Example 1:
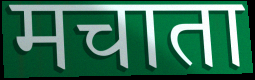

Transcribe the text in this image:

मचाता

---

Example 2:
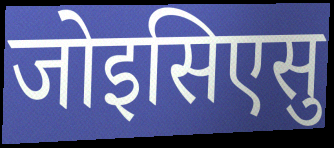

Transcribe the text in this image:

जोइसिएसु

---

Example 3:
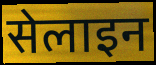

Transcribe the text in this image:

सेलाइन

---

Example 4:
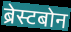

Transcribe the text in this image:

ब्रेस्टबोन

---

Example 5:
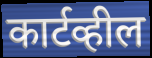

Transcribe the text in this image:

कार्टव्हील